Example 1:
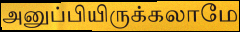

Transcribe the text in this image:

அனுப்பியிருக்கலாமே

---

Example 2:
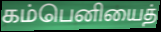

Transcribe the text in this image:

கம்பெனியைத்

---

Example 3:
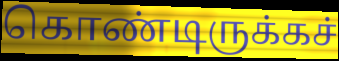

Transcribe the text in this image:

கொண்டிருக்கச்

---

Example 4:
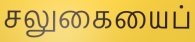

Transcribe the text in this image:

சலுகையைப்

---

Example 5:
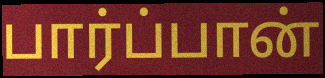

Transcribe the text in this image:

பார்ப்பான்